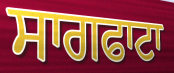
ਸਾਗਫਾਟਾ